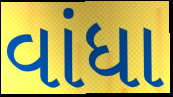
વાંધા